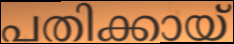
പതിക്കായ്